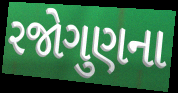
રજોગુણના